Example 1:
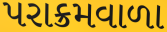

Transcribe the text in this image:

પરાક્રમવાળા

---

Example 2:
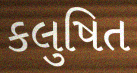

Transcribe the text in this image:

કલુષિત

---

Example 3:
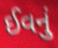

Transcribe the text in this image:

ઈવનું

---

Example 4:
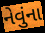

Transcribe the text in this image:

નેવુંના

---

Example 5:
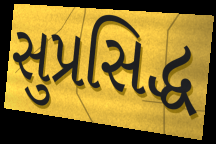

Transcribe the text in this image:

સુપ્રસિદ્ધ